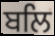
ਬਲਿ